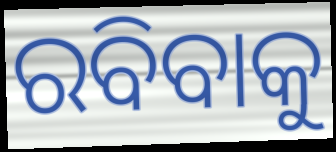
ରବିବାକୁ